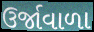
ઉર્જાવાળા